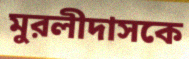
মুরলীদাসকে